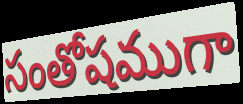
సంతోషముగా